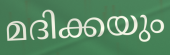
മദിക്കയും